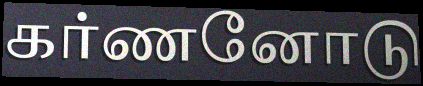
கர்ணனோடு